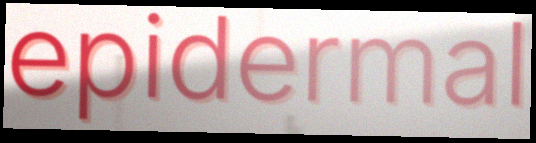
epidermal